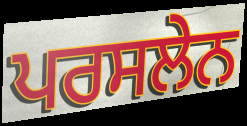
ਪਰਸਲੇਨ